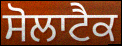
ਸੋਲਾਟੈਕ